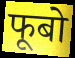
फूबो